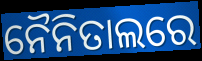
ନୈନିତାଲରେ